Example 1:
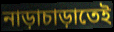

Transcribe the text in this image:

নাড়াচাড়াতেই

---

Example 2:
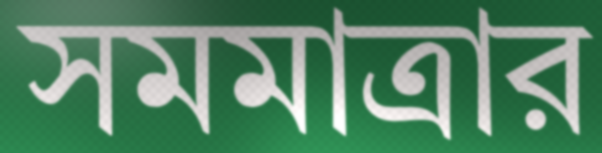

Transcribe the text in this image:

সমমাত্রার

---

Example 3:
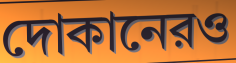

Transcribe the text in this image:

দোকানেরও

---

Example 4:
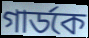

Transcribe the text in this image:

গার্ডকে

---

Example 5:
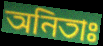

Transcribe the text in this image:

অনিতাঃ